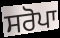
ਸਰੋਪਾ